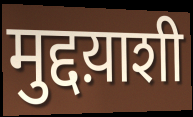
मुद्दय़ाशी